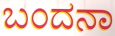
ಬಂದನಾ